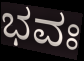
ಭವಃ